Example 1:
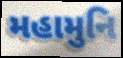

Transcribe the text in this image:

મહામુનિ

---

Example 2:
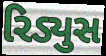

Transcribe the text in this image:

રિડ્યુસ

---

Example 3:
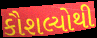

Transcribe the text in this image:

કૌશલ્યોથી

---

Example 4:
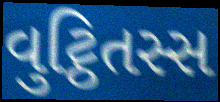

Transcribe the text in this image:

વુટ્ઠિતસ્સ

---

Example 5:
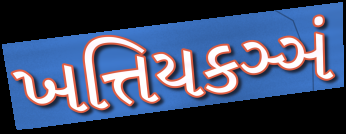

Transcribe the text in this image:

ખત્તિયકઞ્ઞં